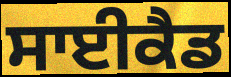
ਸਾਈਕੈਡ